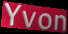
Yvon